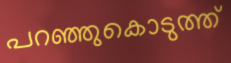
പറഞ്ഞുകൊടുത്ത്